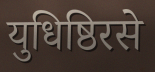
युधिष्ठिरसे